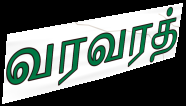
வரவரத்